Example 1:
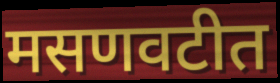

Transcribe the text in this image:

मसणवटीत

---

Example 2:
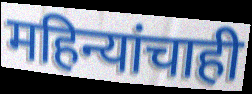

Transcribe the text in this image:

महिन्यांचाही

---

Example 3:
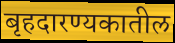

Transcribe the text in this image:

बृहदारण्यकातील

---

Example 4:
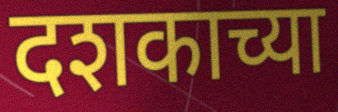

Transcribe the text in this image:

दशकाच्या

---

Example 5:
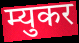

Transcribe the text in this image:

म्युकर